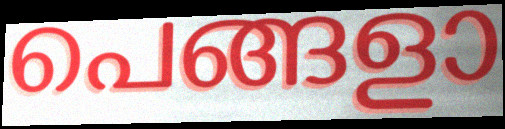
പെങ്ങളാ